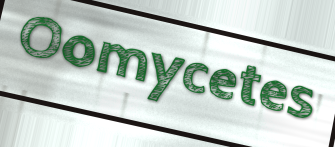
Oomycetes